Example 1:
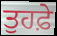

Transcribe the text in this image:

ਤੁਹਫ਼ੇ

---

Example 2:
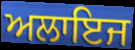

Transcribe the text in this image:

ਅਲਾਇਜ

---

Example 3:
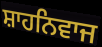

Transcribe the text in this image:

ਸ਼ਾਹਨਿਵਾਜ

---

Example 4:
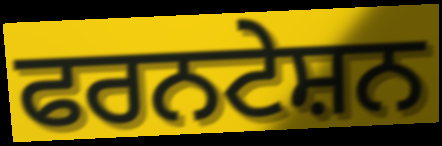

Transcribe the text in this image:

ਫਰਨਟੇਸ਼ਨ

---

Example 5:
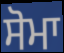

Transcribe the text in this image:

ਸੋਮਾ